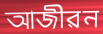
আজীৱন